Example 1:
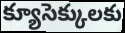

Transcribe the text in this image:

క్యూసెక్కులకు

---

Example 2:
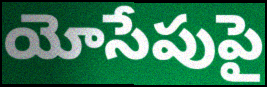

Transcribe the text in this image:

యోసేపుపై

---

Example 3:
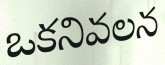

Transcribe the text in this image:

ఒకనివలన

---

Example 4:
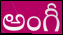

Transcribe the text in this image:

అంగీ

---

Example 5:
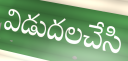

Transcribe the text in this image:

విడుదలచేసి